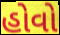
હોવો